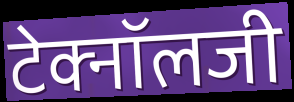
टेक्‍नॉलजी